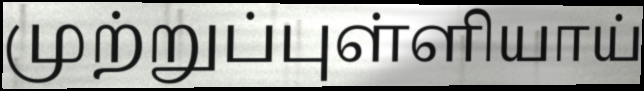
முற்றுப்புள்ளியாய்